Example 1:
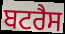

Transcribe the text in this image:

ਬਟਰੈਸ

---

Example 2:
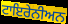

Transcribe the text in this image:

ਟਾਇਰੇਨੀਅਨ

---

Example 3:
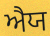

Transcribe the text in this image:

ਐਯ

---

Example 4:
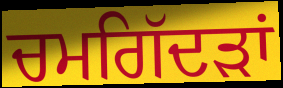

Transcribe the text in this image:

ਚਮਗਿੱਦੜਾਂ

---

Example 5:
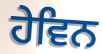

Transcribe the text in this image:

ਹੇਵਿਨ